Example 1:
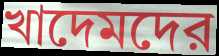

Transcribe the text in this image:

খাদেমদের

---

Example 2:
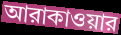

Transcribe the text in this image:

আরাকাওয়ার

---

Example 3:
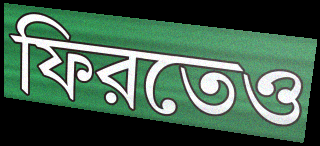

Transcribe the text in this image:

ফিরতেও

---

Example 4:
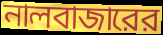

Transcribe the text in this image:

নালবাজারের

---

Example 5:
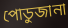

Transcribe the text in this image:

পোডুজানা